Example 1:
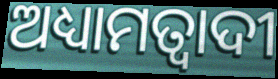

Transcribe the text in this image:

ଅଧ୍ୟାମତ୍ବାଦୀ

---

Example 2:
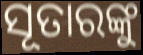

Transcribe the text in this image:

ସୂତାରଙ୍କୁ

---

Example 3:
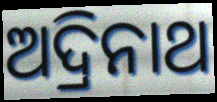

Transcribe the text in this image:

ଅଦ୍ରିନାଥ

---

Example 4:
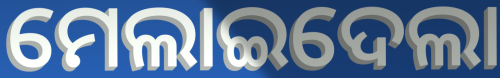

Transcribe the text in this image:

ମେଲାଇଦେଲା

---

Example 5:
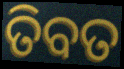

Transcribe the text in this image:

ତିବତ